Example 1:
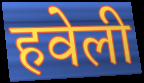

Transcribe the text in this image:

हवेली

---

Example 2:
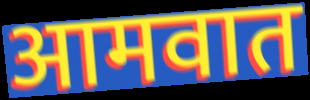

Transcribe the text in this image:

आमवात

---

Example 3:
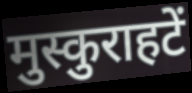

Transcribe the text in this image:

मुस्कुराहटें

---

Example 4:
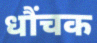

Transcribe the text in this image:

धौंचक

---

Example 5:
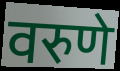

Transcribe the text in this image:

वरुणे